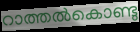
റാത്തൽകൊണ്ടു